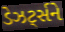
ડેઝર્ટ્સને